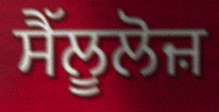
ਸੈੱਲੂਲੋਜ਼